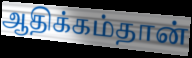
ஆதிக்கம்தான்